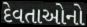
દેવતાઓનો